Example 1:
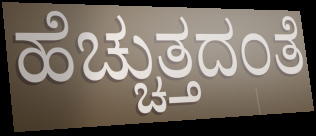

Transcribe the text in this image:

ಹೆಚ್ಚುತ್ತದಂತೆ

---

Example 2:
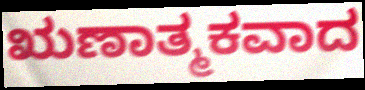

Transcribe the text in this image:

ಋಣಾತ್ಮಕವಾದ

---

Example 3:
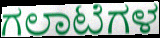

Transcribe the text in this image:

ಗಲಾಟೆಗಳ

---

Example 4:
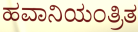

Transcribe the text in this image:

ಹವಾನಿಯಂತ್ರಿತ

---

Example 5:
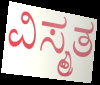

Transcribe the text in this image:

ವಿಸ್ಮೃತ